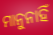
ମାନୁନାହିଁ